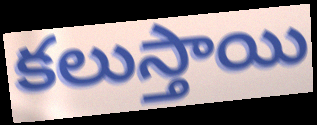
కలుస్తాయి